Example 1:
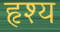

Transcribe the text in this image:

हृश्य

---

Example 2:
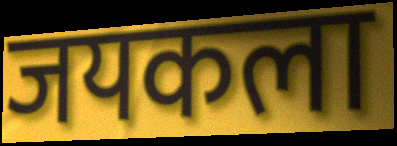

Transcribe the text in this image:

जयकला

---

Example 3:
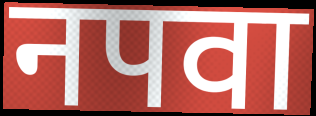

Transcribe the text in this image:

नपवा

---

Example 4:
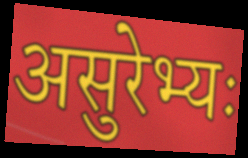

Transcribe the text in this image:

असुरेभ्यः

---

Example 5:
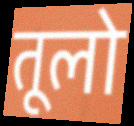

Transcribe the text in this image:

तूलो